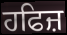
ਹਫਿਜ਼